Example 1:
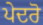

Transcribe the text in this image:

ਪੇਦਰੋ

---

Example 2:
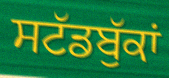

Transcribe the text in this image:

ਸਟੱਡਬੁੱਕਾਂ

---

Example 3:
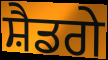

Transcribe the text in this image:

ਸ਼ੈਡਗੇ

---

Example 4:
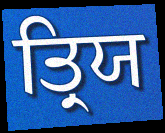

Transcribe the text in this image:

ਤ੍ਰਿਯ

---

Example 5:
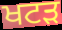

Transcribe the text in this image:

ਖਟੜ